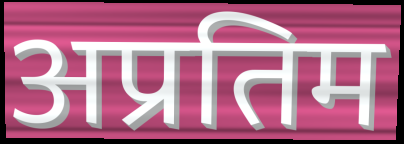
अप्रतिम